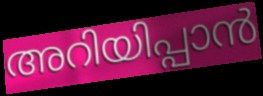
അറിയിപ്പാൻ